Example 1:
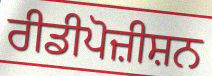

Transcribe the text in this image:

ਰੀਡੀਪੋਜ਼ੀਸ਼ਨ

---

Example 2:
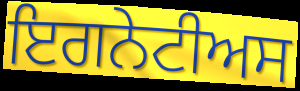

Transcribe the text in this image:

ਇਗਨੇਟੀਅਸ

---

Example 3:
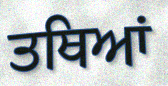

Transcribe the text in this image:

ਤਥਿਆਂ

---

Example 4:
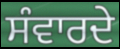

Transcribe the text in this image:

ਸੰਵਾਰਦੇ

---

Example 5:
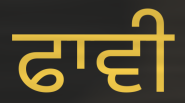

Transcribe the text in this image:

ਫਾਵੀ